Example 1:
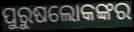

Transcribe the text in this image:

ପୁରୁଷଲୋକଙ୍କର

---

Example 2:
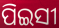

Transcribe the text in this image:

ପିଇସୀ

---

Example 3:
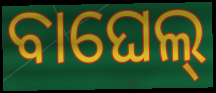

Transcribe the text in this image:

ବାଘେଲ୍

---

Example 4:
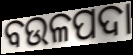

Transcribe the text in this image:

ବଉଳପଦା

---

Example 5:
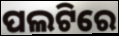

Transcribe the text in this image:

ପଲଟିରେ